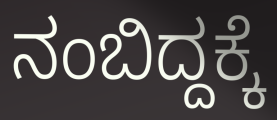
ನಂಬಿದ್ದಕ್ಕೆ